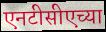
एनटीसीएच्या